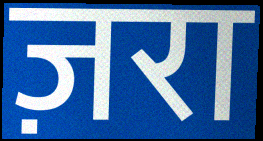
ज़रा